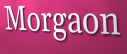
Morgaon